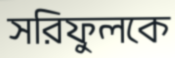
সরিফুলকে